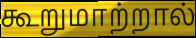
கூறுமாற்றால்